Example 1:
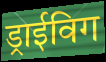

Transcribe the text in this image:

ड्राईविग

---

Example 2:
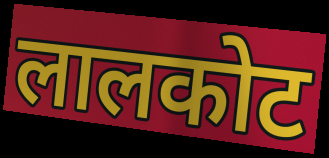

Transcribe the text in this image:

लालकोट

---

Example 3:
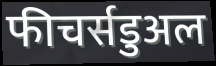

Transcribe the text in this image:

फीचर्सडुअल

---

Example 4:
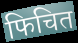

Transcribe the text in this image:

फिचित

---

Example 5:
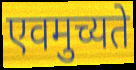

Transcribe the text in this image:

एवमुच्यते